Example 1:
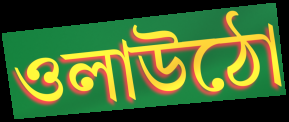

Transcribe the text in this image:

ওলাউঠো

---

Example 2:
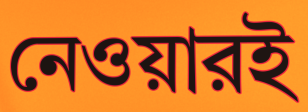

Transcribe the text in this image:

নেওয়ারই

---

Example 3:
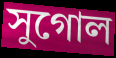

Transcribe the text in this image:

সুগোল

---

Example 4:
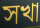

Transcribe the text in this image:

সখা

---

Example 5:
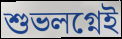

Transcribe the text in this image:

শুভলগ্নেই